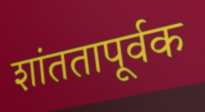
शांततापूर्वक